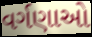
વર્ગણાઓ